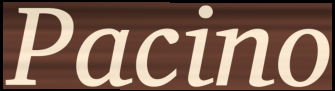
Pacino